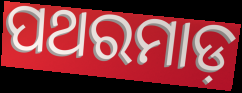
ପଥରମାଡ଼